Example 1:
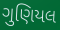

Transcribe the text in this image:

ગુણિયલ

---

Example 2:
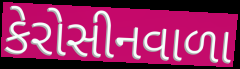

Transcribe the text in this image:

કેરોસીનવાળા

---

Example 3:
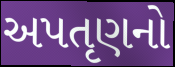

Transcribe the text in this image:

અપતૃણનો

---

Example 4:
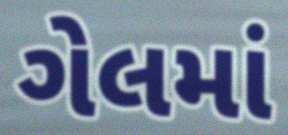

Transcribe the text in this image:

ગેલમાં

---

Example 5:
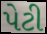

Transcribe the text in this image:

પેટી